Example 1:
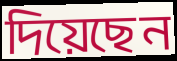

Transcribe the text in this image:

দিয়েছেন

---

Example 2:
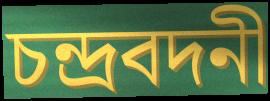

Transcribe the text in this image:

চন্দ্রবদনী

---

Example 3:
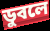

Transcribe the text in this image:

ডুবলে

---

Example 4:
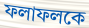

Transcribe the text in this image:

ফলাফলকে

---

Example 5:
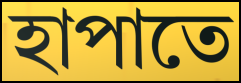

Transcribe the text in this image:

হাপাতে